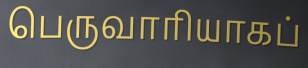
பெருவாரியாகப்